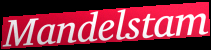
Mandelstam